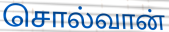
சொல்வான்